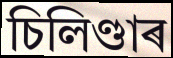
চিলিণ্ডাৰ